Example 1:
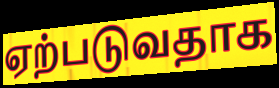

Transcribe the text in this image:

ஏற்படுவதாக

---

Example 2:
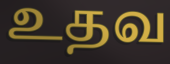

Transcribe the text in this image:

உதவ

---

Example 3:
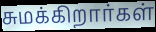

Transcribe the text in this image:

சுமக்கிறார்கள்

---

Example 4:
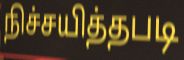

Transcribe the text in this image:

நிச்சயித்தபடி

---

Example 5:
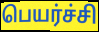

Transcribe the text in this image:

பெயர்ச்சி